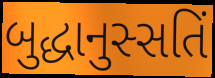
બુદ્ધાનુસ્સતિં